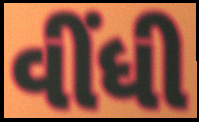
વીંધી